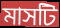
মাসটি